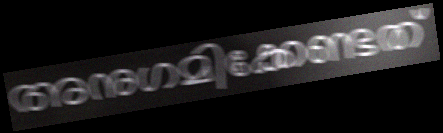
അനുഗമിക്കേണ്ടത്